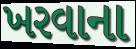
ખરવાના